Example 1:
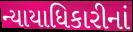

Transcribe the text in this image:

ન્યાયાધિકારીનાં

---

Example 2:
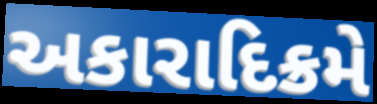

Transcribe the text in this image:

અકારાદિક્રમે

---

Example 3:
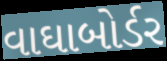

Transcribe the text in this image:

વાઘાબોર્ડર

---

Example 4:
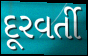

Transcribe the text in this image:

દૂરવર્તી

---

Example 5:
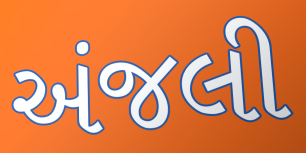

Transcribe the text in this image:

અંજલી